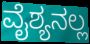
ವೈಶ್ಯನಲ್ಲ